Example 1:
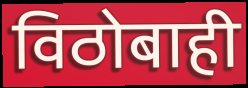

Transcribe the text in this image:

विठोबाही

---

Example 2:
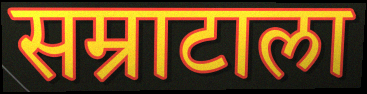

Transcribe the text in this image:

सम्राटाला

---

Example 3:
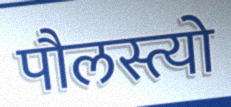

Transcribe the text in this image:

पौलस्त्यो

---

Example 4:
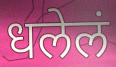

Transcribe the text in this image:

धलेलं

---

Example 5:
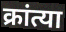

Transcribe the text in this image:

क्रांत्या